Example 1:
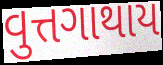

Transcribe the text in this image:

વુત્તગાથાય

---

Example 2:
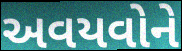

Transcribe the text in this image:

અવયવોને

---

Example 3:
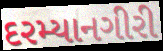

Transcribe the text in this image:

દરમ્યાનગીરી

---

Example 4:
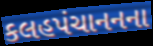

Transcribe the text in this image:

કલહપંચાનનના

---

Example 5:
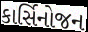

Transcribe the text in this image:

કાર્સિનોજન